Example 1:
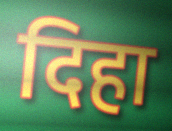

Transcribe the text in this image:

दिहा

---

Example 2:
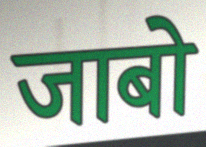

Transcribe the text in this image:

जाबो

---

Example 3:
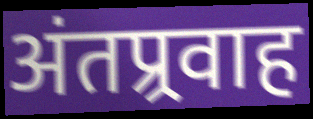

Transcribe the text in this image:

अंतप्र्रवाह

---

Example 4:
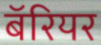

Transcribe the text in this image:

बॅरियर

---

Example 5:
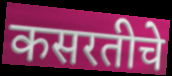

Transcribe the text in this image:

कसरतीचे